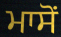
ਮਾਸੋਂ